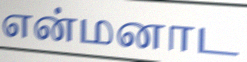
என்மனாட